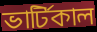
ভার্টিকাল